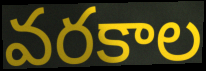
వరకాల